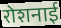
रोशनाई